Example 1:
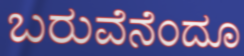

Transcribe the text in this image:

ಬರುವೆನೆಂದೂ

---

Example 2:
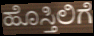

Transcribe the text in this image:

ಹೊಸ್ತಿಲಿಗೆ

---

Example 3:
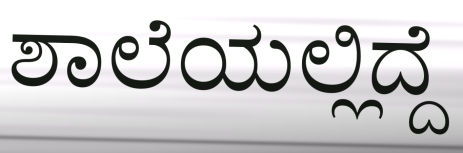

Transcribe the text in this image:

ಶಾಲೆಯಲ್ಲಿದ್ದೆ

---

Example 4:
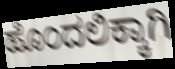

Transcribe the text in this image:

ಹೊಂದಲಿಕ್ಕಾಗಿ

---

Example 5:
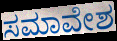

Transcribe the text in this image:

ಸಮಾವೇಶ